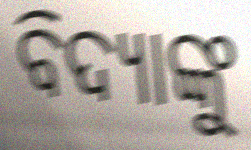
ବିଦ୍ୟାଙ୍କୁ